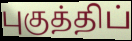
புகுத்திப்